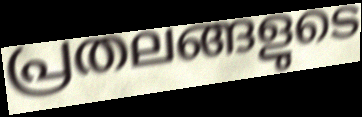
പ്രതലങ്ങളുടെ